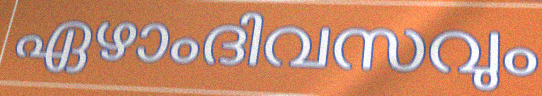
ഏഴാംദിവസവും